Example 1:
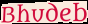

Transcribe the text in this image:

Bhudeb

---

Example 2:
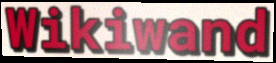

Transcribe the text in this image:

Wikiwand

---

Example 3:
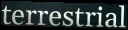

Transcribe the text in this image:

terrestrial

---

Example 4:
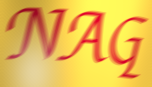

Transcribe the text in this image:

NAG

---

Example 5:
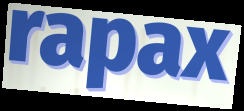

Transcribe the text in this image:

rapax